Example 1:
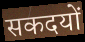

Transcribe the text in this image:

सकदयों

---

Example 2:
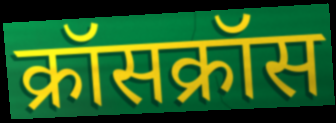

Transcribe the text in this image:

क्रॉसक्रॉस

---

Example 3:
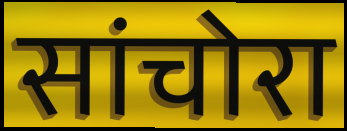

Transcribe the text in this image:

सांचोरा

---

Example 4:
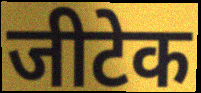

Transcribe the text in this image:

जीटेक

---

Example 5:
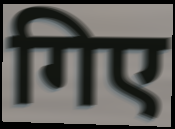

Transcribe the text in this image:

गिए